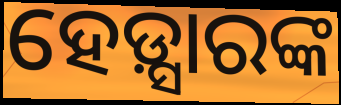
ହେଡ଼୍ସାରଙ୍କ